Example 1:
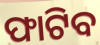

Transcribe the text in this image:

ଫାଟିବ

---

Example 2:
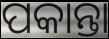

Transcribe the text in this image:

ପକାନ୍ତା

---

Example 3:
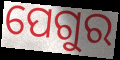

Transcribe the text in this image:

ପେଗୁର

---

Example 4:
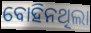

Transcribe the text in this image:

ବୋହିନଥିଲା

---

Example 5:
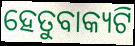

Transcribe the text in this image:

ହେତୁବାକ୍ୟଟି